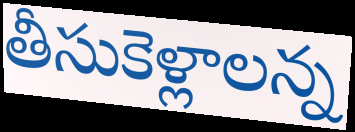
తీసుకెళ్లాలన్న